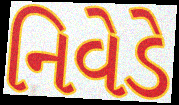
નિવેડે